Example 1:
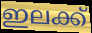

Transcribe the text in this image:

ഇലക്ക്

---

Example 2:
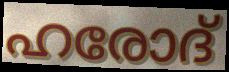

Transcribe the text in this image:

ഹരോദ്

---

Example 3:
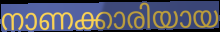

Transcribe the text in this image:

നാണക്കാരിയായ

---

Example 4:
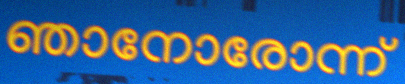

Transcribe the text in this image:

ഞാനോരോന്ന്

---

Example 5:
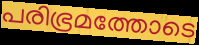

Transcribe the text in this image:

പരിഭ്രമത്തോടെ